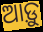
ଆଡ଼ୁ